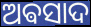
ଅଵସାଦ